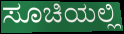
ಸೂಚಿಯಲ್ಲಿ